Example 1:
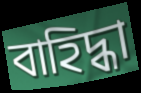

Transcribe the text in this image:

বাহিদ্ধা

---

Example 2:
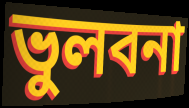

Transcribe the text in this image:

ভুলবনা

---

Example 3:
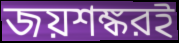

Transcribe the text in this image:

জয়শঙ্করই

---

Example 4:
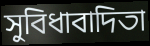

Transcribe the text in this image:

সুবিধাবাদিতা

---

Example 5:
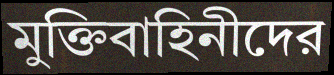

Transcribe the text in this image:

মুক্তিবাহিনীদের